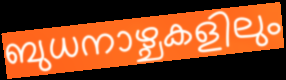
ബുധനാഴ്ചകളിലും